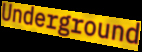
Underground